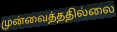
முன்வைத்ததில்லை